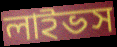
লাইভস